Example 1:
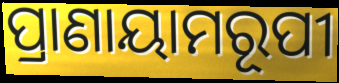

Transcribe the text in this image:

ପ୍ରାଣାୟାମରୂପୀ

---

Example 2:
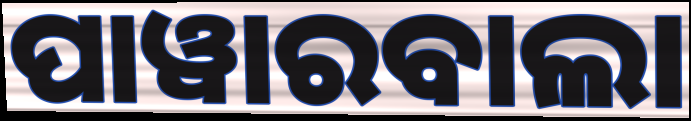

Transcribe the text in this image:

ପାୱାରବାଲା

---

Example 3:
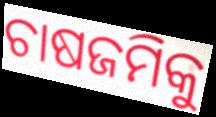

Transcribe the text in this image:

ଚାଷଜମିକୁ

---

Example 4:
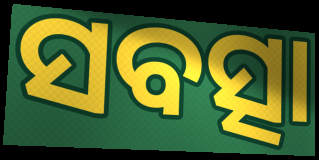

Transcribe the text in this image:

ସବତ୍ସା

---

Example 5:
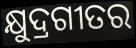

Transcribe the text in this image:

କ୍ଷୁଦ୍ରଗୀତର